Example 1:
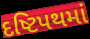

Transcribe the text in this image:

દષ્ટિપથમાં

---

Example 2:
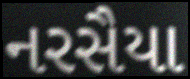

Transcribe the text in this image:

નરસૈયા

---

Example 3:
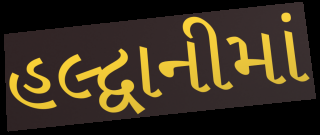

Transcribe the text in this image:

હલ્દ્વાનીમાં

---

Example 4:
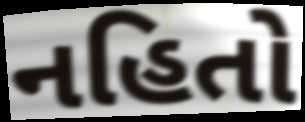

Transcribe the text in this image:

નહિતો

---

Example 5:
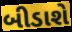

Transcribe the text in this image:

બીડાશે